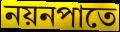
নয়নপাতে